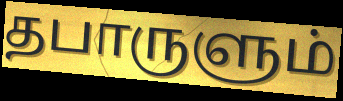
தபாருளும்